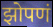
झोपणं